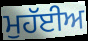
ਮੁਹੱਈਅ